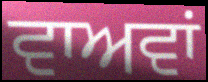
ਵਾਅਵਾਂ